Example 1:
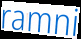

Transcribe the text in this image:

ramni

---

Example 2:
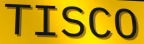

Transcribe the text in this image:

TISCO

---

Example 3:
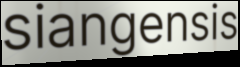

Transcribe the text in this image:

siangensis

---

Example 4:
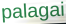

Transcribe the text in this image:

palagai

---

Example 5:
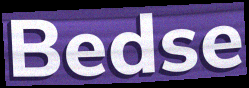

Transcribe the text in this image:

Bedse